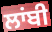
ਲਾਂਬੀ